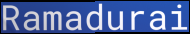
Ramadurai